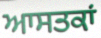
ਆਸਤਕਾਂ